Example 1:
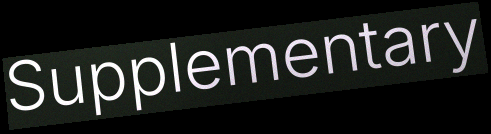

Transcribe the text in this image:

Supplementary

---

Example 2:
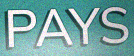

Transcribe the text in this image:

PAYS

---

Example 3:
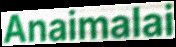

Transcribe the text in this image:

Anaimalai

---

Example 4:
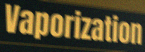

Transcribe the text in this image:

Vaporization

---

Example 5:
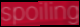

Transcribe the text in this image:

spoiling